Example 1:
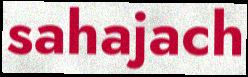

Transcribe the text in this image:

sahajach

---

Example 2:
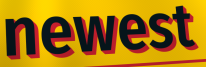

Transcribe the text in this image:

newest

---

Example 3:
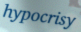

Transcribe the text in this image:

hypocrisy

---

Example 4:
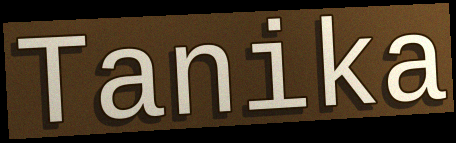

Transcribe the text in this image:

Tanika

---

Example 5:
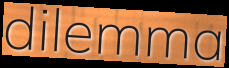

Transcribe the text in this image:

dilemma